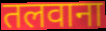
तलवाना